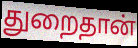
துறைதான்